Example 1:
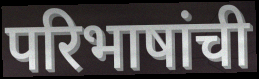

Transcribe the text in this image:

परिभाषांची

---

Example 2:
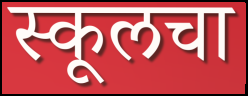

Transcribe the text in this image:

स्कूलचा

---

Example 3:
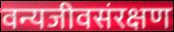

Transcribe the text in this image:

वन्यजीवसंरक्षण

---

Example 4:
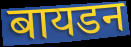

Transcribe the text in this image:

बायडन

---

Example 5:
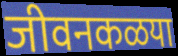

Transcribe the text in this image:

जीवनकळया